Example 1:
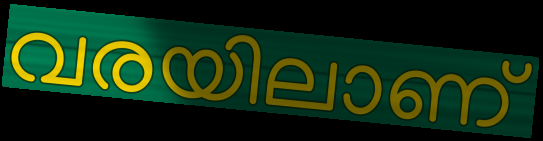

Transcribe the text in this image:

വരയിലാണ്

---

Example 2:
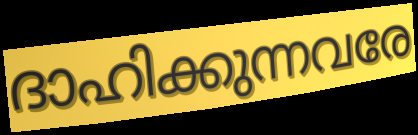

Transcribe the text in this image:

ദാഹിക്കുന്നവരേ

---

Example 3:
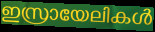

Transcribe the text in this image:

ഇസ്രായേലികൾ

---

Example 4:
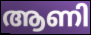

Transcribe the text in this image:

ആണി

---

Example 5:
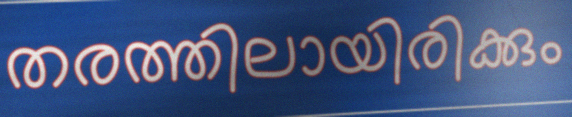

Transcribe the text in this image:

തരത്തിലായിരിക്കും